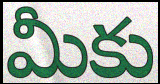
మీకు